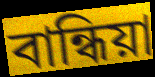
বান্ধিয়া